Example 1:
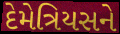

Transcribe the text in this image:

દેમેત્રિયસને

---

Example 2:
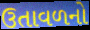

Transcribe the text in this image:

ઉતાવળનો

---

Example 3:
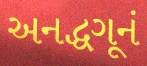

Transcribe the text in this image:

અનદ્ધગૂનં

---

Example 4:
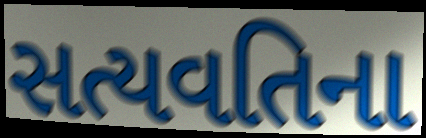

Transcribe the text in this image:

સત્યવતિના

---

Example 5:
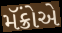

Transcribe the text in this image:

મૅંક્રોએ